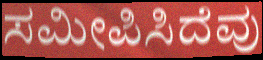
ಸಮೀಪಿಸಿದೆವು